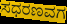
ಸಧರಣವಗ